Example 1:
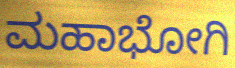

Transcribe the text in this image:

ಮಹಾಭೋಗಿ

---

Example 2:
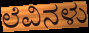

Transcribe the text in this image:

ಲೆವಿನಳು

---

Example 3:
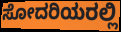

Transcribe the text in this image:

ಸೋದರಿಯರಲ್ಲಿ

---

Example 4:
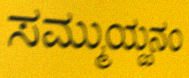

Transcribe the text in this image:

ಸಮ್ಮುಯ್ಹನಂ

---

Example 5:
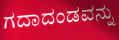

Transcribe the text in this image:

ಗದಾದಂಡವನ್ನು